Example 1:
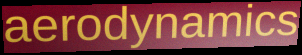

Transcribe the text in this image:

aerodynamics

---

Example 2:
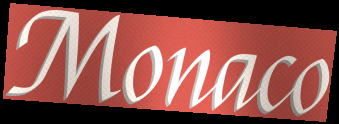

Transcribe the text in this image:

Monaco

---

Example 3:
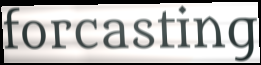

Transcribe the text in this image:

forcasting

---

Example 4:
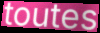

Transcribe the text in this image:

toutes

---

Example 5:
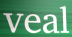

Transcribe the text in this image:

veal